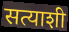
सत्याशी